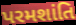
પરમશાંતિ